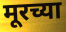
मूरच्या